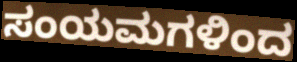
ಸಂಯಮಗಳಿಂದ